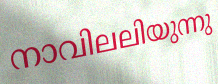
നാവിലലിയുന്നു